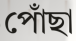
পোঁছা